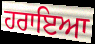
ਹਰਾਇਆ